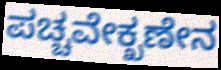
ಪಚ್ಚವೇಕ್ಖಣೇನ